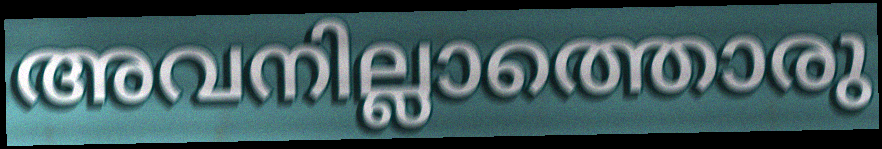
അവനില്ലാത്തൊരു